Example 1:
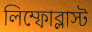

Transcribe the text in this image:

লিম্ফোব্লাস্ট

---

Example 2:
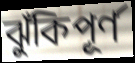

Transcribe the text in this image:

ঝুঁকিপূর্ণ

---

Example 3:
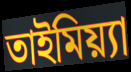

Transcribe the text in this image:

তাইমিয়্যা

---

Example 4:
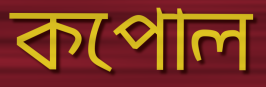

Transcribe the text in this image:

কপোল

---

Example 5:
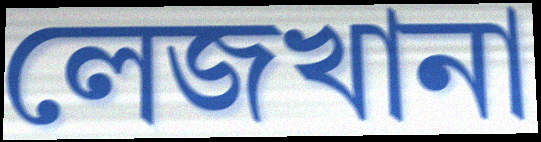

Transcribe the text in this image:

লেজখানা